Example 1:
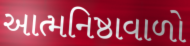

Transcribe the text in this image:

આત્મનિષ્ઠાવાળો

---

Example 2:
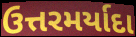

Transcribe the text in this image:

ઉત્તરમર્યાદા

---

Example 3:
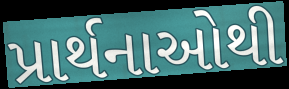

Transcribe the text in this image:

પ્રાર્થનાઓથી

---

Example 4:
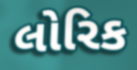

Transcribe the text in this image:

લોરિક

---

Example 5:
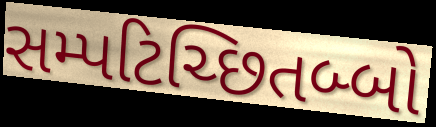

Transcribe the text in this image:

સમ્પટિચ્છિતબ્બો